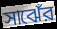
সাঝেঁর